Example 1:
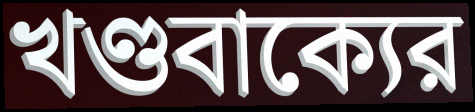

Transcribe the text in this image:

খণ্ডবাক্যের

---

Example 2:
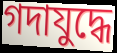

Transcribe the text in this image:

গদাযুদ্ধে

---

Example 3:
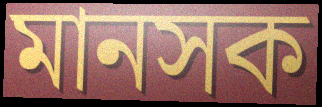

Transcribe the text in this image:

মানসক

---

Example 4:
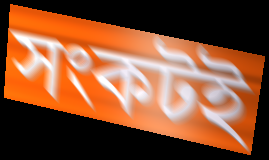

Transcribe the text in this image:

সংকটই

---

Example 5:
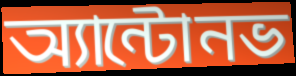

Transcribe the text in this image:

অ্যান্টোনভ